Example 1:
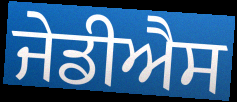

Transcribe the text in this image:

ਜੇਡੀਐਸ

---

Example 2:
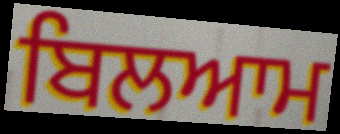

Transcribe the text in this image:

ਬਿਲਆਮ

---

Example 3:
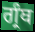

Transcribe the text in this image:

ਗ੍ਰੰਥ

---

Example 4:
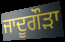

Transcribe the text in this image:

ਜਾਦੂਗੌੜਾ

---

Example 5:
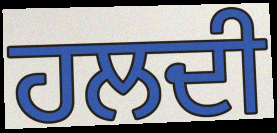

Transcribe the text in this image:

ਹਲਦੀ